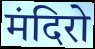
मंदिरो